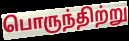
பொருந்திற்று